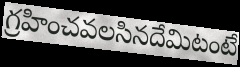
గ్రహించవలసినదేమిటంటే